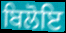
ਬਿਲੋਇ